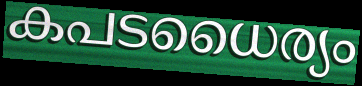
കപടധൈര്യം